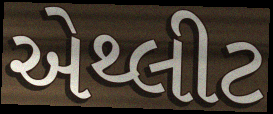
એથ્લીટ